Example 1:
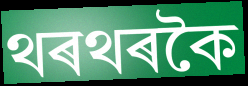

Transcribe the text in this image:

থৰথৰকৈ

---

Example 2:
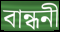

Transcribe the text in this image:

বান্ধনী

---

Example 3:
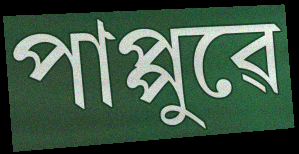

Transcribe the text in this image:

পাপ্পুৱে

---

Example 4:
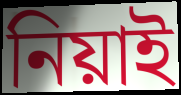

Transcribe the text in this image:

নিয়াই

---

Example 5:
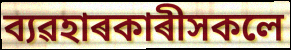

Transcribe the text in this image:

ব্যৱহাৰকাৰীসকলে